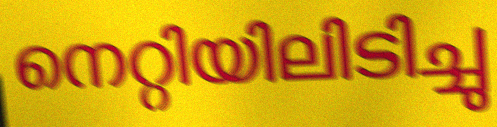
നെറ്റിയിലിടിച്ചു